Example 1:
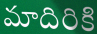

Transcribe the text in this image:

మాదిరికి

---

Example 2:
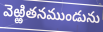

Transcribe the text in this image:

వెఱ్ఱితనముండును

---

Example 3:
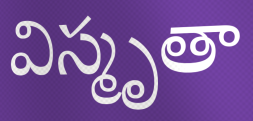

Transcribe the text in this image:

విస్మృతా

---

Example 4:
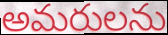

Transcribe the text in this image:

అమరులను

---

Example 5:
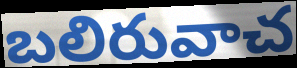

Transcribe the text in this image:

బలిరువాచ